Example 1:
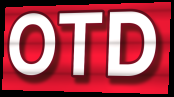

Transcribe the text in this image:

OTD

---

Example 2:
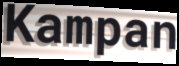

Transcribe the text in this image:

Kampan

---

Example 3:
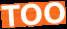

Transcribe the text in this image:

TOO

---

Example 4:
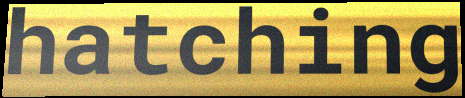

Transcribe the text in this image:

hatching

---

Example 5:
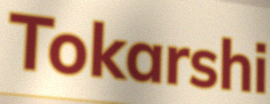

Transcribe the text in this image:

Tokarshi